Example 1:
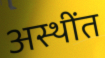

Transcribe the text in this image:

अस्थींत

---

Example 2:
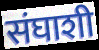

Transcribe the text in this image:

संघाशी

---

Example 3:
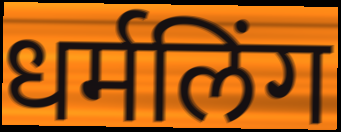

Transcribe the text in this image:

धर्मलिंग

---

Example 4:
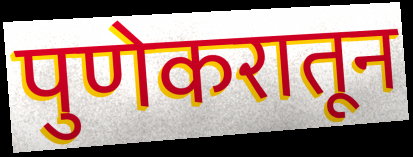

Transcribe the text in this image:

पुणेकरातून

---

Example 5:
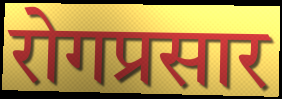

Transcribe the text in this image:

रोगप्रसार